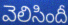
వెలిసిందీ